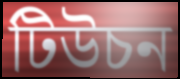
টিউচন